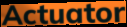
Actuator